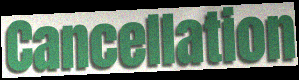
Cancellation